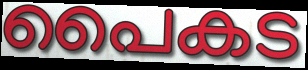
പൈകട